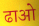
ढाओ